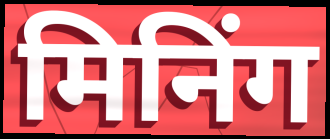
मिनिंग